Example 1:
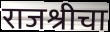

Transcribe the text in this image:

राजश्रीचा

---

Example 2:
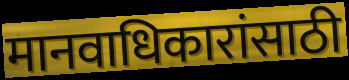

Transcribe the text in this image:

मानवाधिकारांसाठी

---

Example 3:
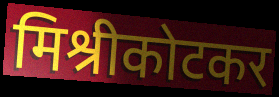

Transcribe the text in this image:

मिश्रीकोटकर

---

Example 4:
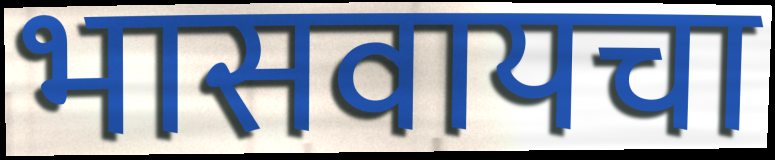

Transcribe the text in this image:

भासवायचा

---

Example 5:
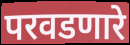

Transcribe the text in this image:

परवडणारे